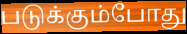
படுக்கும்போது